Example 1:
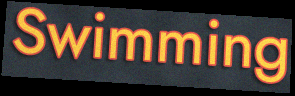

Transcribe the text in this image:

Swimming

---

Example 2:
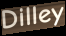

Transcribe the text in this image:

Dilley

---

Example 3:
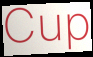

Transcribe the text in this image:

Cup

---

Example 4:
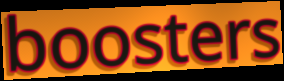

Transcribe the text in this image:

boosters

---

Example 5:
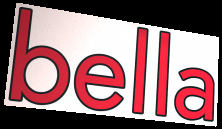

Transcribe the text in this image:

bella